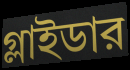
গ্লাইডার